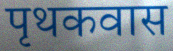
पृथकवास